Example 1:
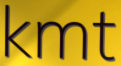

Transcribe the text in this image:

kmt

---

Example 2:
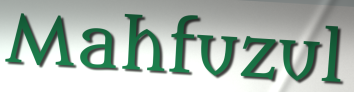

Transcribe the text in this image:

Mahfuzul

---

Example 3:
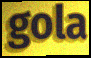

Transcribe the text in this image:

gola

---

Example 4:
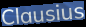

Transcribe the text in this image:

Clausius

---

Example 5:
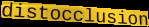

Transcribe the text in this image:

distocclusion